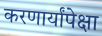
करणार्यांपेक्षा